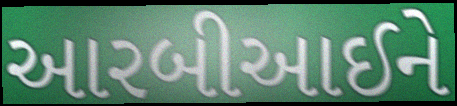
આરબીઆઈને